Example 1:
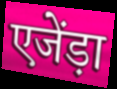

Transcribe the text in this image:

एजेंड़ा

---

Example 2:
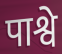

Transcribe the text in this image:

पाश्वे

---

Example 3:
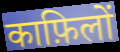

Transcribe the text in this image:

काफ़िलों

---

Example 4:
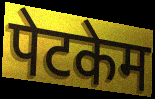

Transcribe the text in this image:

पेटकेम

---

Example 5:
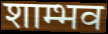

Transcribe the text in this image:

शाम्भव